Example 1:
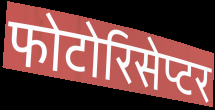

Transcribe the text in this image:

फोटोरिसेप्टर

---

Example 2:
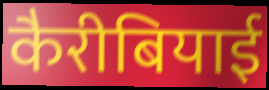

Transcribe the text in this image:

कैरीबियाई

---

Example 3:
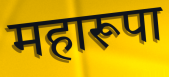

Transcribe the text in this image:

महारूपा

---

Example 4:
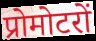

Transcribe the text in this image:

प्रोमोटरों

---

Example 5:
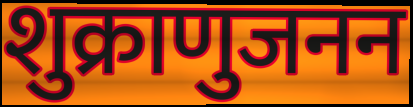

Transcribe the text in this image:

शुक्राणुजनन